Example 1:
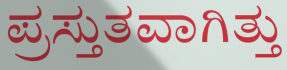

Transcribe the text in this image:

ಪ್ರಸ್ತುತವಾಗಿತ್ತು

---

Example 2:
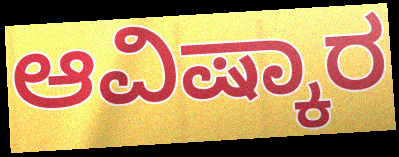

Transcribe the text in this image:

ಆವಿಷ್ಕಾರ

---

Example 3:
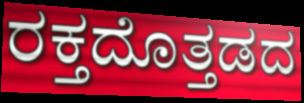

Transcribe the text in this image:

ರಕ್ತದೊತ್ತಡದ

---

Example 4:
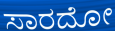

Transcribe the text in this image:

ಸಾರದೋ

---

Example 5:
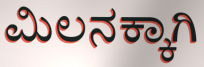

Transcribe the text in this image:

ಮಿಲನಕ್ಕಾಗಿ